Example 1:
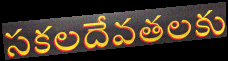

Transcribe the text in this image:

సకలదేవతలకు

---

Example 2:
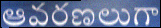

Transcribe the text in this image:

ఆవరణలుగా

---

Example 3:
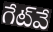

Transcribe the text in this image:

గేట్‌వే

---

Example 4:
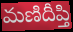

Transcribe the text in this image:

మణిదీప్తి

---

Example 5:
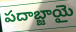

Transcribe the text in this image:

పదాబ్జాయై